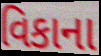
વિકાના